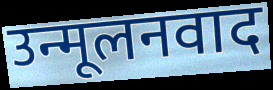
उन्मूलनवाद